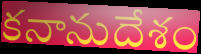
కనానుదేశం